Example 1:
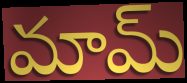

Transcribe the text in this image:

మామ్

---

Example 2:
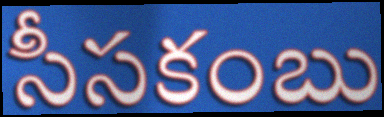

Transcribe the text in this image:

సీసకంబు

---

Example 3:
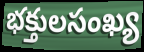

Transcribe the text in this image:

భక్తులసంఖ్య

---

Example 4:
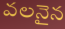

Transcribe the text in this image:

వలనైన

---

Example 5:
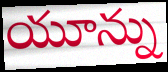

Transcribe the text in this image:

యూన్ను